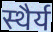
स्थैर्य